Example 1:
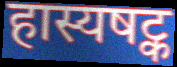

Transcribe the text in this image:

हास्यषट्क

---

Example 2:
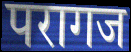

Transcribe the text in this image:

परागज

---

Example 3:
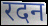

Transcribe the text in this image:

रदन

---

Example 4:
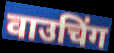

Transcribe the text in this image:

वाउचिंग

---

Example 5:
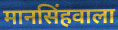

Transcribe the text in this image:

मानसिंहवाला